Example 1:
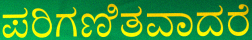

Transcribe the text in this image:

ಪರಿಗಣಿತವಾದರೆ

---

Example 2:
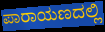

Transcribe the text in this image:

ಪಾರಾಯಣದಲ್ಲಿ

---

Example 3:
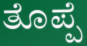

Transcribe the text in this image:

ತೊಪ್ಪೆ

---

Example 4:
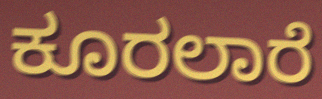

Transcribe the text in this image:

ಕೂರಲಾರೆ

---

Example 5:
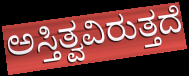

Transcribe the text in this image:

ಅಸ್ತಿತ್ವವಿರುತ್ತದೆ